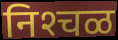
निश्चळ